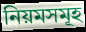
নিয়মসমূহ